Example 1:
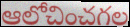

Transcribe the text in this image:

ఆలోచించగల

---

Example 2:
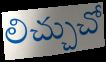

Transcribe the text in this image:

లిచ్చుచో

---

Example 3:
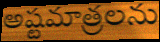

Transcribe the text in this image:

అష్టమాత్రలను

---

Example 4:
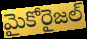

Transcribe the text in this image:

మైకోరైజల్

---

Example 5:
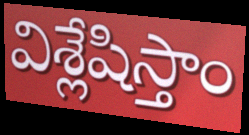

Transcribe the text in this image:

విశ్లేషిస్తాం